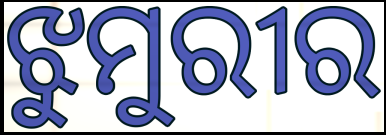
ଝୁମୁରୀର